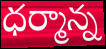
ధర్మాన్న